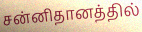
சன்னிதானத்தில்